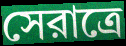
সেরাত্রে